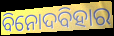
ବିନୋଦବିହାର